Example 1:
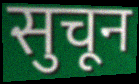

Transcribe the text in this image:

सुचून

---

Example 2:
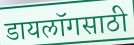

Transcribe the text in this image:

डायलॉगसाठी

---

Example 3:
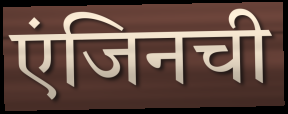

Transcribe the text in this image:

एंजिनची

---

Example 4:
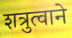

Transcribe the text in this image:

शत्रुत्वाने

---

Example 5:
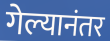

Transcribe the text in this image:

गेल्यानंतर